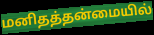
மனிதத்தன்மையில்